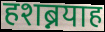
हशब्नयाह